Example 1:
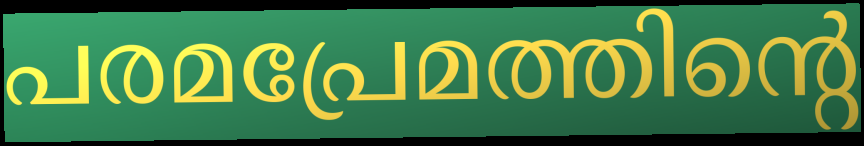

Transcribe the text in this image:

പരമപ്രേമത്തിന്റെ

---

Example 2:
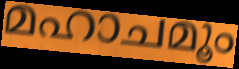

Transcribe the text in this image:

മഹാചമൂം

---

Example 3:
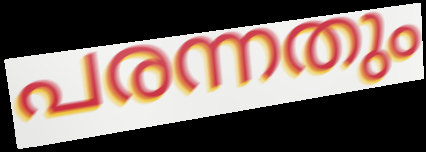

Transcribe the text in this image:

പരന്നതും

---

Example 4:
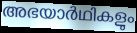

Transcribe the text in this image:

അഭയാർഥികളും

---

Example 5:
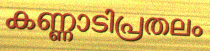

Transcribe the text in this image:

കണ്ണാടിപ്രതലം